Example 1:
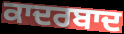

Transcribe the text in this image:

ਕਾਦਰਬਾਦ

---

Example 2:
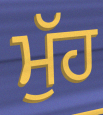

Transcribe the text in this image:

ਮੁੱਹ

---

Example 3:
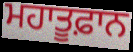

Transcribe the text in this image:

ਮਹਾਤੂਫ਼ਾਨ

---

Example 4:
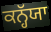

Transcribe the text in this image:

ਕਨ੍ਹੱਯਾ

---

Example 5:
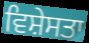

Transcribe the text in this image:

ਵਿਸ਼ੇਸਤਾ